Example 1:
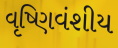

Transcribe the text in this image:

વૃષ્ણિવંશીય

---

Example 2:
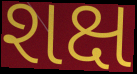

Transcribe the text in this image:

શક્ષ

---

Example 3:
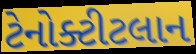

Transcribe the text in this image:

ટેનોક્ટીટલાન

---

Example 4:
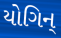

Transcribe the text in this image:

યોગિન્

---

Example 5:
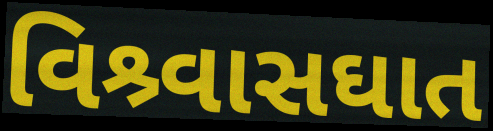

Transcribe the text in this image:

વિશ્ર્વાસઘાત